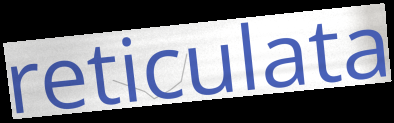
reticulata